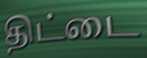
திட்டை